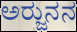
ಅರ್‍ಜುನನ